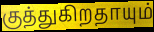
குத்துகிறதாயும்